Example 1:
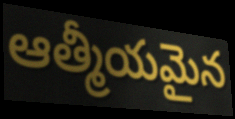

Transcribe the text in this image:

ఆత్మీయమైన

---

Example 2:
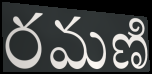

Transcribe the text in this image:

రమణి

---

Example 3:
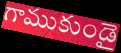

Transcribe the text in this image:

గాముకుండై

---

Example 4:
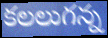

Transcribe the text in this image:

కలలుగన్న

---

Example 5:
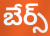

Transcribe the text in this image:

బేర్స్